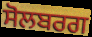
ਸੋਲਬਰਗ